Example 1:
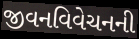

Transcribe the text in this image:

જીવનવિવેચનની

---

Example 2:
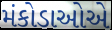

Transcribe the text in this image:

મંકોડાઓએ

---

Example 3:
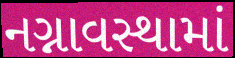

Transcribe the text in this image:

નગ્નાવસ્થામાં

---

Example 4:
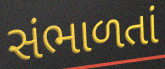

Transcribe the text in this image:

સંભાળતાં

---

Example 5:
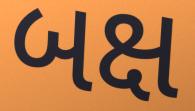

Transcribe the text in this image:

બક્ષ